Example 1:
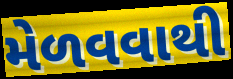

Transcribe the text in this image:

મેળવવાથી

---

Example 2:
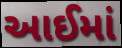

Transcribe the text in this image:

આઈમાં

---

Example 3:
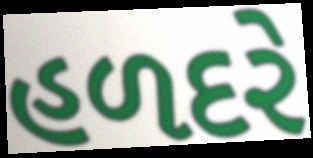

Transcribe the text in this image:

હળદરે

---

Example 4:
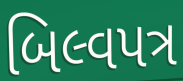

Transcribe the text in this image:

બિલ્વપત્ર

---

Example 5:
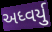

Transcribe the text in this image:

અધ્વર્યુ